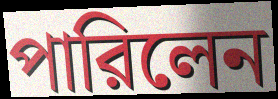
পারিলেন